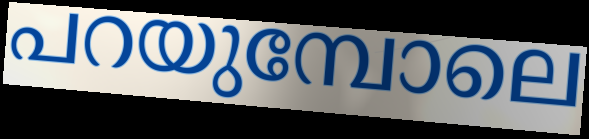
പറയുമ്പോലെ